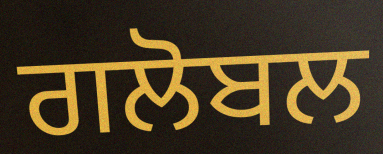
ਗਲੋਬਲ